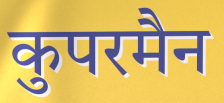
कुपरमैन